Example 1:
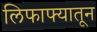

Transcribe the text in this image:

लिफाफ्यातून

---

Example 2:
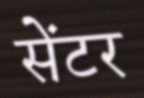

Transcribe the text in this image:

सेंटर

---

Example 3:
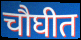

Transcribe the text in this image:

चौघीत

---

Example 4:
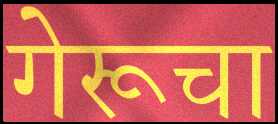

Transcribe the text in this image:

गेरूचा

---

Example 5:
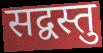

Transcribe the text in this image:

सद्वस्तु